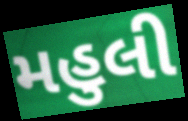
મહુલી